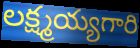
లక్ష్మయ్యగారి